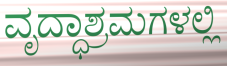
ವೃದ್ಧಾಶ್ರಮಗಳಲ್ಲಿ